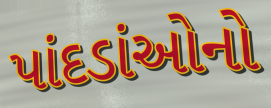
પાંદડાંઓનો